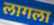
लागला